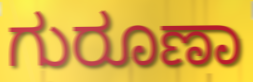
ಗುರೂಣಾ